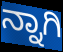
ನ್ನಾಗಿ